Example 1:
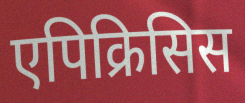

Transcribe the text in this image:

एपिक्रिसिस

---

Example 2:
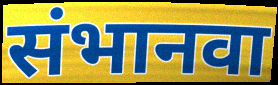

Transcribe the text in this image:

संभानवा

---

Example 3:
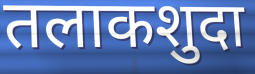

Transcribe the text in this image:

तलाकशुदा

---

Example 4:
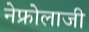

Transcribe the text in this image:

नेफ्रोलाजी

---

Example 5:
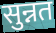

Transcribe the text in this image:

सुन्नत